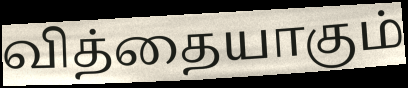
வித்தையாகும்